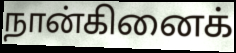
நான்கினைக்